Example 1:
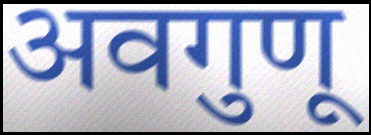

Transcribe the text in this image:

अवगुणू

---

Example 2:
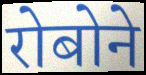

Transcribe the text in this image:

रोबोने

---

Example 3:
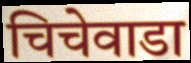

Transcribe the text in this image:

चिचेवाडा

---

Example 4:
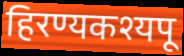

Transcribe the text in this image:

हिरण्यकश्यपू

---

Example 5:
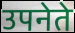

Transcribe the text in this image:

उपनेते